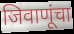
जिवाणूंचा